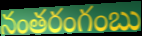
నంతరంగంబు